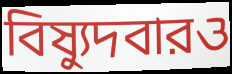
বিষ্যুদবারও